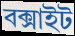
বক্সাইট